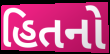
હિતનો